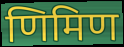
णिमिण